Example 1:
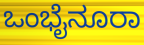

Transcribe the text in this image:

ಒಂಭೈನೂರಾ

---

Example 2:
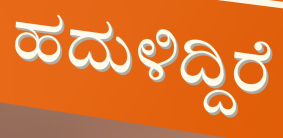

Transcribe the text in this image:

ಹದುಳಿದ್ದಿರೆ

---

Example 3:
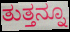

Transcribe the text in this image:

ತುತ್ತನ್ನೂ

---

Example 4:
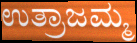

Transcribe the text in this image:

ಉತ್ರಾಜಮ್ಮ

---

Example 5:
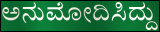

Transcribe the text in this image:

ಅನುಮೋದಿಸಿದ್ದು